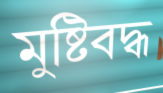
মুষ্টিবদ্ধ